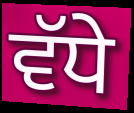
ਵੱਧੇ